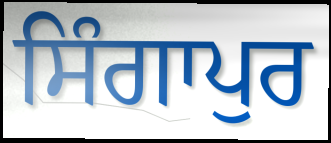
ਸਿੰਗਾਪੁਰ